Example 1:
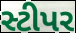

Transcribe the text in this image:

સ્ટીપર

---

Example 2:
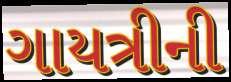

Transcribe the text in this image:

ગાયત્રીની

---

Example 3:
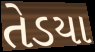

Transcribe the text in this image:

તેડયા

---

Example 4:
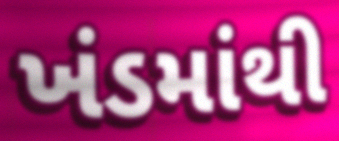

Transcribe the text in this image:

ખંડમાંથી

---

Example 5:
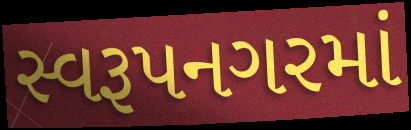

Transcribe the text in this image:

સ્વરૂપનગરમાં